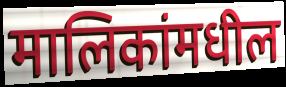
मालिकांमधील